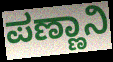
ಪಣ್ಣಾನಿ